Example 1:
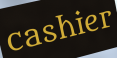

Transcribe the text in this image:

cashier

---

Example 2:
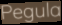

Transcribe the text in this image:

Pegula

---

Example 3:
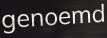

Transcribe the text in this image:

genoemd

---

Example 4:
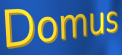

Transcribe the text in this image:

Domus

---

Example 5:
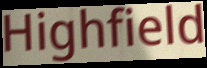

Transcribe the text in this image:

Highfield